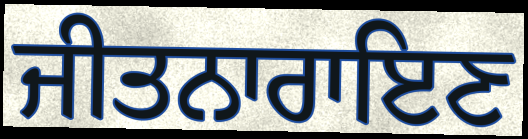
ਜੀਤਨਾਰਾਇਣ